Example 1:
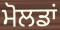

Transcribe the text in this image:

ਮੋਲਡਾਂ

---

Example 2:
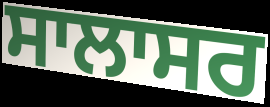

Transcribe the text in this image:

ਸਾਲਾਸਰ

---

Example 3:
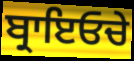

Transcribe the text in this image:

ਬ੍ਰਾਇਓਚੇ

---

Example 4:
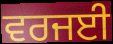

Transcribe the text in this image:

ਵਰਜਈ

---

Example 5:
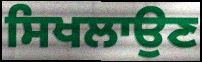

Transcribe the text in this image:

ਸਿਖਲਾਉਣ